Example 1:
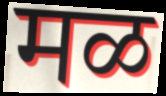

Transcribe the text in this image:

मळ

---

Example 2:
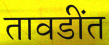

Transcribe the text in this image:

तावडींत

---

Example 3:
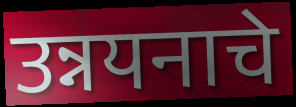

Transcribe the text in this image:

उन्नयनाचे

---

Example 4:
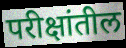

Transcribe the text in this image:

परीक्षांतील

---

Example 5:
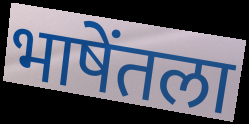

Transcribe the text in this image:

भाषेंतला